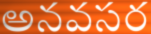
అనవసర